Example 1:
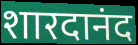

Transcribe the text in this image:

शारदानंद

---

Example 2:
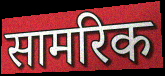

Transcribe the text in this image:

सामरिक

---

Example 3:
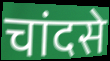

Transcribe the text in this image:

चांदसे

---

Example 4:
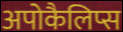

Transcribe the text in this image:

अपोकैलिप्स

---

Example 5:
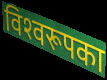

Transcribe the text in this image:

विश्वरूपका